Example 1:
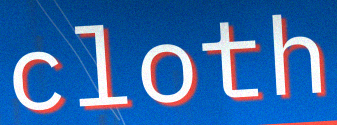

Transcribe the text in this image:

cloth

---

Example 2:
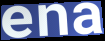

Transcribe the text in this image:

ena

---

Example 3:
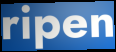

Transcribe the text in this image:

ripen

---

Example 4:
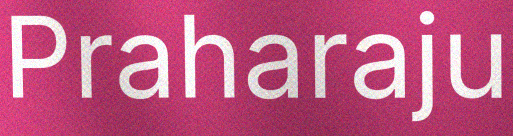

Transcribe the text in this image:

Praharaju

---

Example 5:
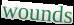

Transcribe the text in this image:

wounds